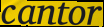
cantor